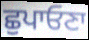
ਛੁਪਾਓਣਾ